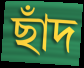
ছাঁদ